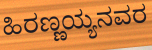
ಹಿರಣ್ಣಯ್ಯನವರ